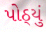
પોઠ્યું